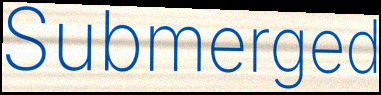
Submerged